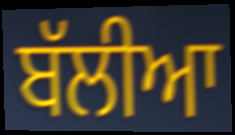
ਬੱਲੀਆ